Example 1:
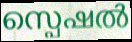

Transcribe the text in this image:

സ്പെഷൽ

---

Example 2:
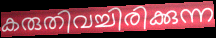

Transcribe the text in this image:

കരുതിവച്ചിരിക്കുന്ന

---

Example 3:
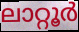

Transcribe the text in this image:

ലാറ്റൂർ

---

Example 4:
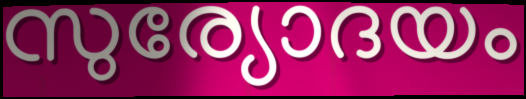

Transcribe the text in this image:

സുര്യോദയം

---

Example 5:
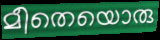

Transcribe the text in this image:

മീതെയൊരു